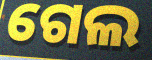
ଗେଲ